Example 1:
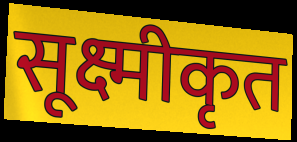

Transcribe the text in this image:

सूक्ष्मीकृत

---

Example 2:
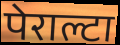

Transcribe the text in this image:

पेराल्टा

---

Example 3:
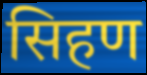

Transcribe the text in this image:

सिहण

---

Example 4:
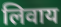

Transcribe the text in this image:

लिवाय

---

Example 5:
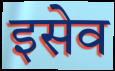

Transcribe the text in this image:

इसेव